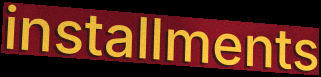
installments